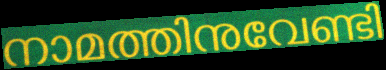
നാമത്തിനുവേണ്ടി